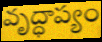
వృద్ధాప్యం